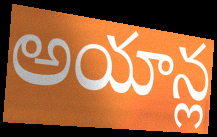
అయాన్ల